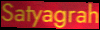
Satyagrah